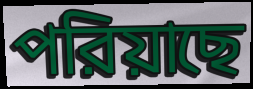
পরিয়াছে